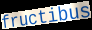
fructibus